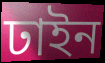
ঢাইন